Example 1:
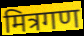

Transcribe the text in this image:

मित्रगण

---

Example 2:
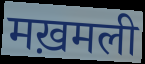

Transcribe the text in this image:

मख़मली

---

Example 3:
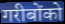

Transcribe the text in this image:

गरीबोंको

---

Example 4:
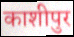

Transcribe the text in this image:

काशीपुर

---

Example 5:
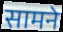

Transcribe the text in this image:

सामने